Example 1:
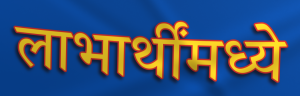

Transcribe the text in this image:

लाभार्थींमध्ये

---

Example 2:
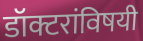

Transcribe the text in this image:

डॉक्टरांविषयी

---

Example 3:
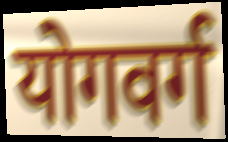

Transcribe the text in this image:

योगवर्ग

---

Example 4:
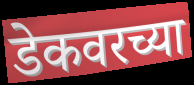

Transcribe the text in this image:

डेकवरच्या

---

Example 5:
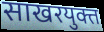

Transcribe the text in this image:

साखरयुक्त